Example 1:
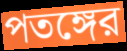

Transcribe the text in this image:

পতঙ্গের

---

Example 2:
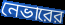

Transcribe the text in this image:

নেভারের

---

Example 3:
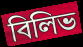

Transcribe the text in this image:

বিলিভ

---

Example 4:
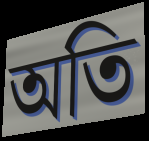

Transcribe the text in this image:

অতি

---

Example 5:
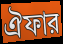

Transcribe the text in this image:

ঐফার